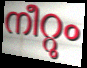
നീറ്റും